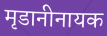
मृडानीनायक